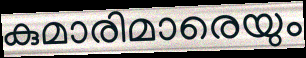
കുമാരിമാരെയും